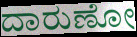
ದಾರುಣೋ